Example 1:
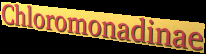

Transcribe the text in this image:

Chloromonadinae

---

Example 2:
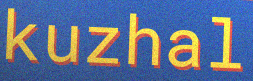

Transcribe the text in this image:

kuzhal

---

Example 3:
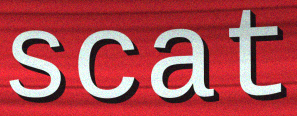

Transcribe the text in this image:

scat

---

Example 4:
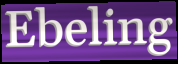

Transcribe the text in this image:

Ebeling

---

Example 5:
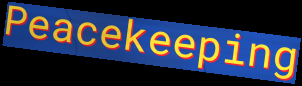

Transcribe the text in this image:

Peacekeeping